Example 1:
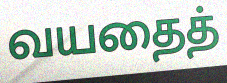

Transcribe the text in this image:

வயதைத்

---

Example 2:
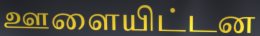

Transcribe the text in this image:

ஊளையிட்டன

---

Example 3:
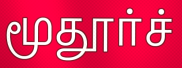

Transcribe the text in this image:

மூதூர்ச்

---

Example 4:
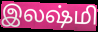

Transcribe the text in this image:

இலஷ்மி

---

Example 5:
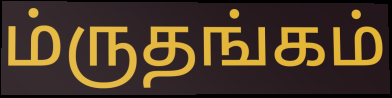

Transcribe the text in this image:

ம்ருதங்கம்